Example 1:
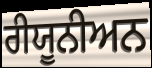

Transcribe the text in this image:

ਰੀਯੂਨੀਅਨ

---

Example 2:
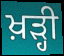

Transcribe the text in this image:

ਖ਼ੜ੍ਹੀ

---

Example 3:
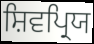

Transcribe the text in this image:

ਸ਼ਿਵਪ੍ਰਿਯ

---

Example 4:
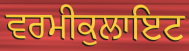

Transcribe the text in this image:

ਵਰਮੀਕੁਲਾਇਟ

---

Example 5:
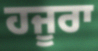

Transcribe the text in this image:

ਹਜੂਰਾ